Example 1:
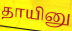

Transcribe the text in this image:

தாயினு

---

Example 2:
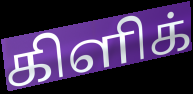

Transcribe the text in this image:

கிளிக்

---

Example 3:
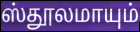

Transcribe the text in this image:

ஸ்தூலமாயும்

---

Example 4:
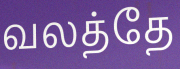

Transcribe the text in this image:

வலத்தே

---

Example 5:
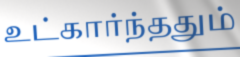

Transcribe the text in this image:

உட்கார்ந்ததும்